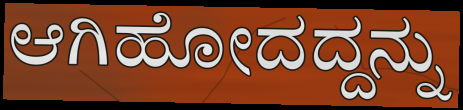
ಆಗಿಹೋದದ್ದನ್ನು